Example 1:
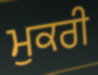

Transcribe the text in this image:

ਮੁਕਰੀ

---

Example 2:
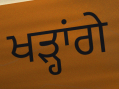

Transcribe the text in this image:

ਖੜ੍ਹਾਂਗੇ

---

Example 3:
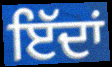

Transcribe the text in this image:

ਇੱਦਾਂ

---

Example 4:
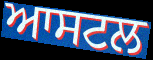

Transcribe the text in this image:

ਆਸਟਲ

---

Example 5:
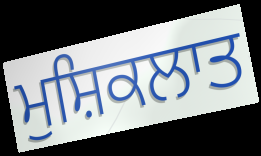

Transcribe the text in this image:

ਮੁਸ਼ਿਕਲਾਤ